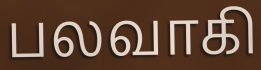
பலவாகி